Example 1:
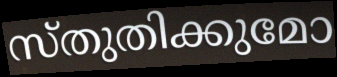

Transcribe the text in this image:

സ്തുതിക്കുമോ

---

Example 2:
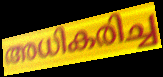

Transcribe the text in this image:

അധികരിച്ച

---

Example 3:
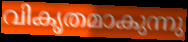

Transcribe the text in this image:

വികൃതമാകുന്നു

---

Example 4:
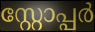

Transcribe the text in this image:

സ്റ്റോപ്പർ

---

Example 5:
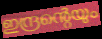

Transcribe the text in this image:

ഇന്ദ്രന്റെയും